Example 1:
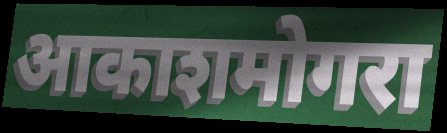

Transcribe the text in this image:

आकाशमोगरा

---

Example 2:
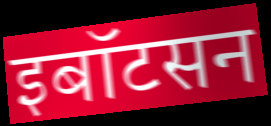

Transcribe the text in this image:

इबॉटसन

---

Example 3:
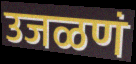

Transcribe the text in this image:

उजळणं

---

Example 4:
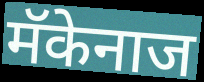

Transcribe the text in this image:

मॅकेनाज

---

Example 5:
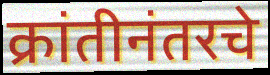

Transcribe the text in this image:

क्रांतीनंतरचे